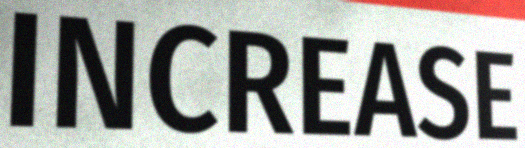
INCREASE